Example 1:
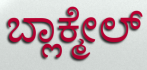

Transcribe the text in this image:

ಬ್ಲಾಕ್ಮೇಲ್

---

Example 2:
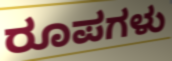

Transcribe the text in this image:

ರೂಪಗಳು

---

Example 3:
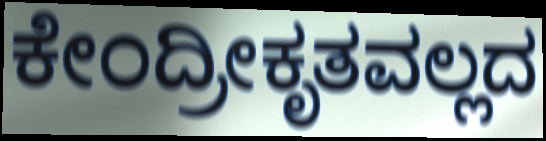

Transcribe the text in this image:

ಕೇಂದ್ರೀಕೃತವಲ್ಲದ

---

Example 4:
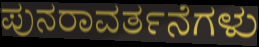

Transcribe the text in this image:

ಪುನರಾವರ್ತನೆಗಳು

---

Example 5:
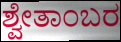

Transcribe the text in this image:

ಶ್ವೇತಾಂಬರ